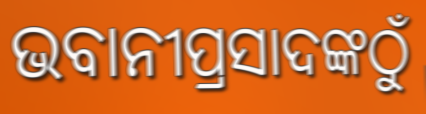
ଭବାନୀପ୍ରସାଦଙ୍କଠୁଁ